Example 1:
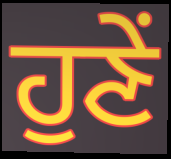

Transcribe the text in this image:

ਹੁਣੇਂ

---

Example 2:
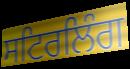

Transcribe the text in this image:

ਸਟਿਰਲਿੰਗ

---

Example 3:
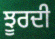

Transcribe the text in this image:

ਝੂਰਦੀ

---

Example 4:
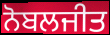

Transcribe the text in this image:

ਨੋਬਲਜੀਤ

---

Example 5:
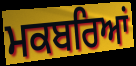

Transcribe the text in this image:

ਮਕਬਰਿਆਂ